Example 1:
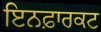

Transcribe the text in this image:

ਇਨਫ਼ਾਰਕਟ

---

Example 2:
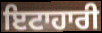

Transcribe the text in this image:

ਇਟਾਹਾਰੀ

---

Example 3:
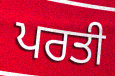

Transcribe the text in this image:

ਪਰਤੀ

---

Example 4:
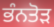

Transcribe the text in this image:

ਭੰਨਤੋੜ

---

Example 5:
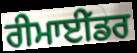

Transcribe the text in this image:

ਰੀਮਾਈਂਡਰ